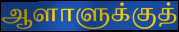
ஆளாளுக்குத்